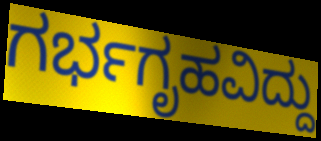
ಗರ್ಭಗೃಹವಿದ್ದು